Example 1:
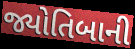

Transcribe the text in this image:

જ્યોતિબાની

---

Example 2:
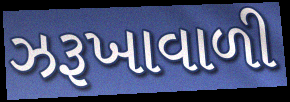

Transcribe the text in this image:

ઝરૂખાવાળી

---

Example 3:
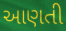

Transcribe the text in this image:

આણતી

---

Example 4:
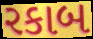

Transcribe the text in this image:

રકાબ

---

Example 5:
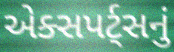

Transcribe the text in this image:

એક્સપર્ટ્સનું